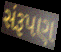
સંરૂપણ